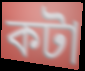
কটা